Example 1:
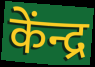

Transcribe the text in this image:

केंन्द्र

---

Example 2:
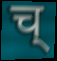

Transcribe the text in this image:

च्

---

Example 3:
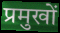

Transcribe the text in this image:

प्रमुखों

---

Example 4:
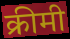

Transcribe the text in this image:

क्रीमी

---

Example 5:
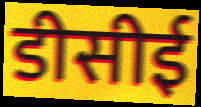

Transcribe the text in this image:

डीसीई